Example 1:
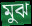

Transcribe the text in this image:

মুঝ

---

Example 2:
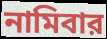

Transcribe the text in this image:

নামিবার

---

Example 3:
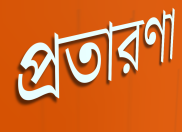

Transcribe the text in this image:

প্রতারণা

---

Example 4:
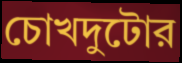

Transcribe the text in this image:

চোখদুটোর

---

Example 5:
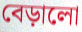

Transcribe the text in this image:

বেড়ালো